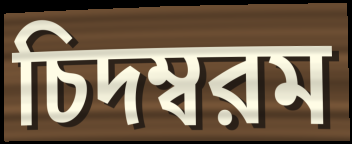
চিদম্বরম